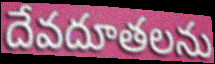
దేవదూతలను